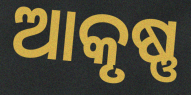
ଆକୃଷ୍ଣ